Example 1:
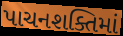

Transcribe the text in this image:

પાચનશક્તિમાં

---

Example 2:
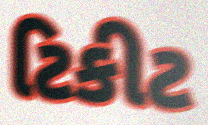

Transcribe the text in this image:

ટિકીટ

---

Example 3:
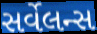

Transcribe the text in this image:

સર્વેલન્સ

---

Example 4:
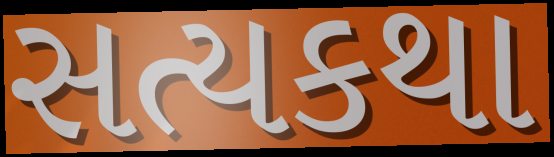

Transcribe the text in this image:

સત્યકથા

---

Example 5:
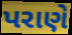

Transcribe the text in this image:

પરાણે